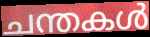
ചന്തകൾ